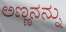
ಅಣ್ಣನನ್ನು